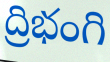
ద్రిభంగి